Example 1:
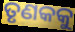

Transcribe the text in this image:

ତୃଣକକୁ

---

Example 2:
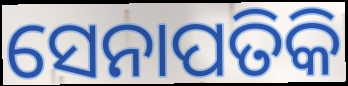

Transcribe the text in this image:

ସେନାପତିକି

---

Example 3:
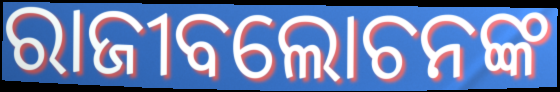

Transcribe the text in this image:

ରାଜୀବଲୋଚନଙ୍କ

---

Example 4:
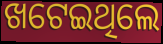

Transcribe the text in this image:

ଖଟେଇଥିଲେ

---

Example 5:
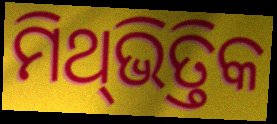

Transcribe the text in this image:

ମିଥ୍‍ଭିତ୍ତିକ